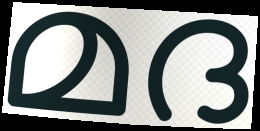
മദ